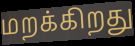
மறக்கிறது